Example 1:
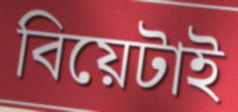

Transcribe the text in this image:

বিয়েটাই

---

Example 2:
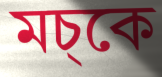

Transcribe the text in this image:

মচ্কে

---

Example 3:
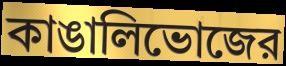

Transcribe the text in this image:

কাঙালিভোজের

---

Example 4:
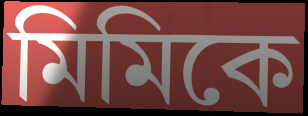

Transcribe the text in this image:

মিমিকে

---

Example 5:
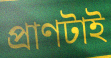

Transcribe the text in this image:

প্রাণটাই